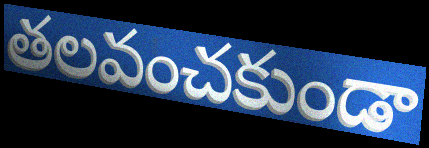
తలవంచకుండా